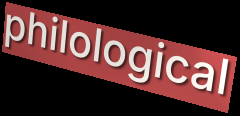
philological